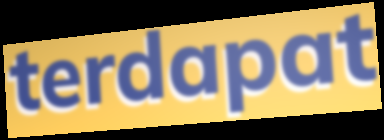
terdapat